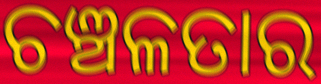
ଚଞ୍ଚଳତାର